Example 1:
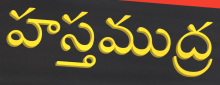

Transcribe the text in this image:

హస్తముద్ర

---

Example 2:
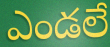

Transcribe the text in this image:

ఎండలే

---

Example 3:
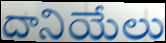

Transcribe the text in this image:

దానియేలు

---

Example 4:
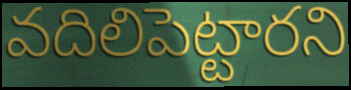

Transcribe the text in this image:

వదిలిపెట్టారని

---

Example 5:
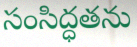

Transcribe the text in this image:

సంసిద్ధతను